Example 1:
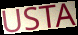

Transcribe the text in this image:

USTA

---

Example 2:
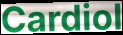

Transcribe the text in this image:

Cardiol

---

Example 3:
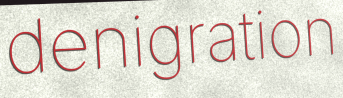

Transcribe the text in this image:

denigration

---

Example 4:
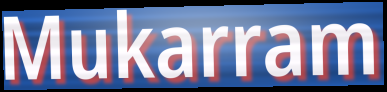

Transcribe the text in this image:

Mukarram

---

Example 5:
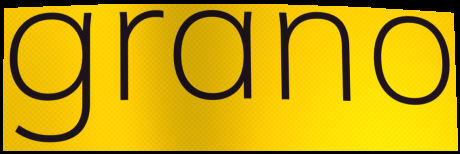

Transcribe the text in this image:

grano